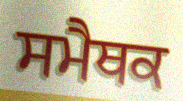
ਸਮੈਥਕ